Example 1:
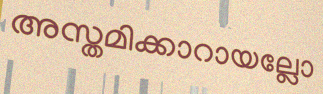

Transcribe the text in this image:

അസ്തമിക്കാറായല്ലോ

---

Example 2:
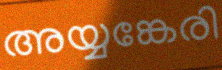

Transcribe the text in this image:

അയ്യങ്കേരി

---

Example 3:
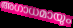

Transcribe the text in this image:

അഗാധമായും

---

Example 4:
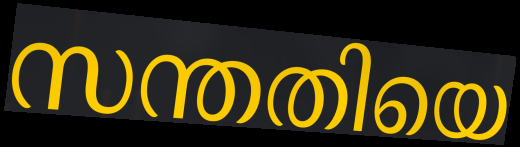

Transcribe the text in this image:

സന്തതിയെ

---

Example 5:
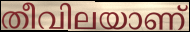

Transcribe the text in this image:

തീവിലയാണ്